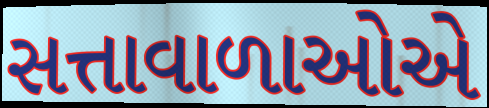
સત્તાવાળાઓએ